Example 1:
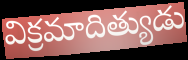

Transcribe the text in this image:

విక్రమాదిత్యుడు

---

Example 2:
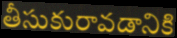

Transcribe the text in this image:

తీసుకురావడానికి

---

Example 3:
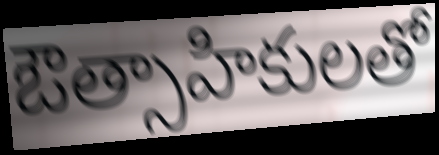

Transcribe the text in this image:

ఔత్సాహికులతో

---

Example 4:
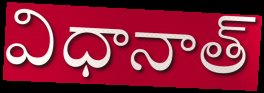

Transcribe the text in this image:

విధానాత్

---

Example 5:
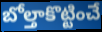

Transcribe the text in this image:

బోల్తాకొట్టించే